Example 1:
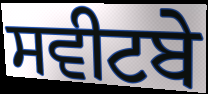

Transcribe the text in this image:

ਸਵੀਟਬੇ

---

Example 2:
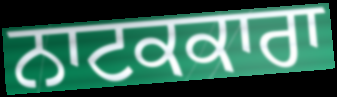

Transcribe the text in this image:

ਨਾਟਕਕਾਰਾ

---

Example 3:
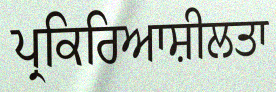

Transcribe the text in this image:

ਪ੍ਰਕਿਰਿਆਸ਼ੀਲਤਾ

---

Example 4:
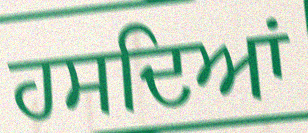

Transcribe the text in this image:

ਹਸਦਿਆਂ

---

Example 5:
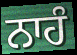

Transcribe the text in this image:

ਨਾਹੰ